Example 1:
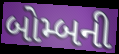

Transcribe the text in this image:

બોમ્બની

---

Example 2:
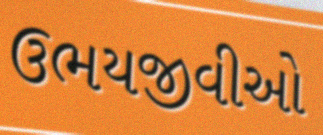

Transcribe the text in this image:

ઉભયજીવીઓ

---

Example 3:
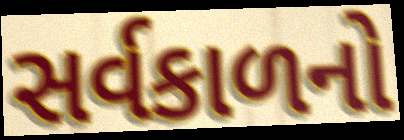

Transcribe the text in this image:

સર્વકાળનો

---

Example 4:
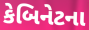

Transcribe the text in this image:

કેબિનેટના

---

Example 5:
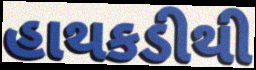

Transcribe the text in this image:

હાથકડીથી